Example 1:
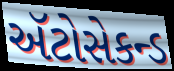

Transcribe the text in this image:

ઍટોસેકન્ડ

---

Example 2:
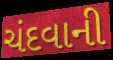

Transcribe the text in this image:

ચંદવાની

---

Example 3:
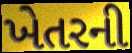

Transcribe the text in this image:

ખેતરની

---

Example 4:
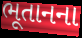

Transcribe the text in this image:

ભૂતાનના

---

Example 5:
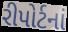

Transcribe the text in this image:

રીપોર્ટનાં